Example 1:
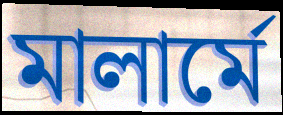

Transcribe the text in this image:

মালার্মে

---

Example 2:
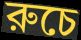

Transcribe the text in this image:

রুচে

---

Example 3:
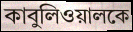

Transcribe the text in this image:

কাবুলিওয়ালকে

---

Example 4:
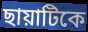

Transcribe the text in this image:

ছায়াটিকে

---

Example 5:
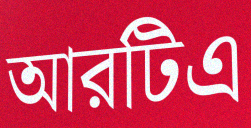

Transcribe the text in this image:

আরটিএ